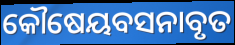
କୌଷେୟବସନାବୃତ